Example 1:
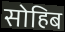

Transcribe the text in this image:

सोहिब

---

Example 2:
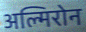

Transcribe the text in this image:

अल्मिरोन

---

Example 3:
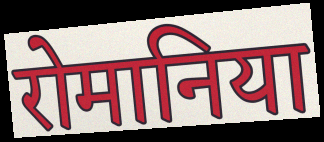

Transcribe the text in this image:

रोमानिया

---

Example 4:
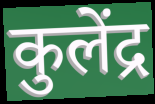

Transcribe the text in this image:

कुलेंद्र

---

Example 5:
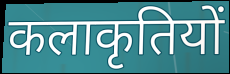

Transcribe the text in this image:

कलाकृतियों